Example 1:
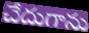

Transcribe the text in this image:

చేదుగాను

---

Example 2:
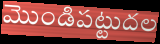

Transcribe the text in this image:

మొండిపట్టుదల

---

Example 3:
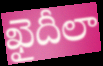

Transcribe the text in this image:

ఖైదీలా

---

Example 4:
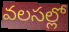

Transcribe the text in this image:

వలసల్లో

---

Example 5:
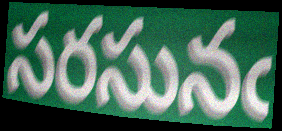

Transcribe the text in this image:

సరసునఁ